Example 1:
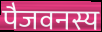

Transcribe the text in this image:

पैजवनस्य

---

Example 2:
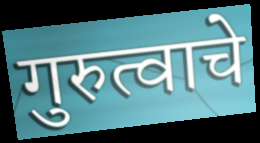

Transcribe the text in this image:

गुरुत्वाचे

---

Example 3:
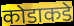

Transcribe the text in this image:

कोडाकडे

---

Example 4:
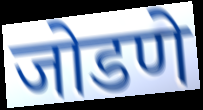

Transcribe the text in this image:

जोडणे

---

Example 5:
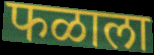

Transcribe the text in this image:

फळाला